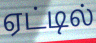
ஏட்டில்